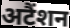
अटैंशन